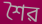
শৈৱ